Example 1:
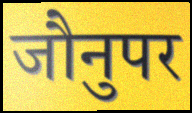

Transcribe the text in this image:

जौनुपर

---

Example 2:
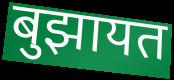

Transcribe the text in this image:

बुझायत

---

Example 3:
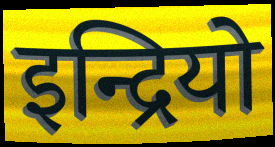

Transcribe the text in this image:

इन्द्रियो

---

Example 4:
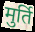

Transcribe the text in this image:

मुर्ति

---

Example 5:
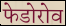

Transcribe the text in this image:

फेडोरोव